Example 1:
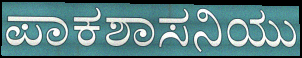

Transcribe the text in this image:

ಪಾಕಶಾಸನಿಯು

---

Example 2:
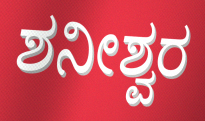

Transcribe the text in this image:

ಶನೀಶ್ವರ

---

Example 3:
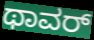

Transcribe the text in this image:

ಥಾವರ್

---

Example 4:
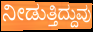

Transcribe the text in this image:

ನೀಡುತ್ತಿದ್ದುವು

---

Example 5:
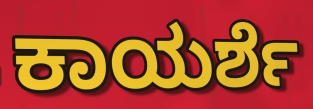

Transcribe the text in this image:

ಕಾಯರ್ಶೆ